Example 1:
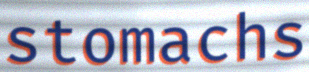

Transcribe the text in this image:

stomachs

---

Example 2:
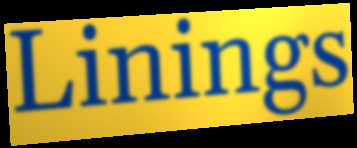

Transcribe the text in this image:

Linings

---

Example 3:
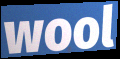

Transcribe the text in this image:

wool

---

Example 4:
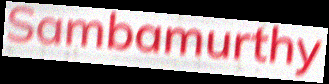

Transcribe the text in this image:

Sambamurthy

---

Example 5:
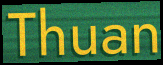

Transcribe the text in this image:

Thuan